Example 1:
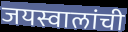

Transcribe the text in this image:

जयस्वालांची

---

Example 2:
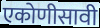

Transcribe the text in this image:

एकोणीसावी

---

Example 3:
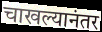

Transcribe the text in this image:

चाखल्यानंतर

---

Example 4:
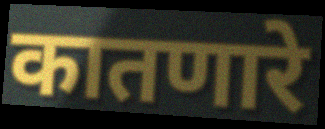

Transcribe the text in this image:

कातणारे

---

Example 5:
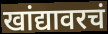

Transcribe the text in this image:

खांद्यावरचं